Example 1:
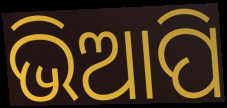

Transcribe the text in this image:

ଭିଆପି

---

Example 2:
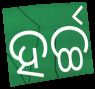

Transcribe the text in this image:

ହର୍ଚ୍ଚ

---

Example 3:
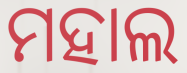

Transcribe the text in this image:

ମହାଲ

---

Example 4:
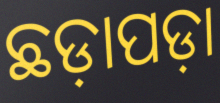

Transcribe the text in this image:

ଛଡ଼ାପଡ଼ା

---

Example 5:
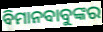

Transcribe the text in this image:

ବିମାନବାବୁଙ୍କର